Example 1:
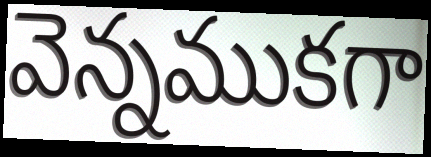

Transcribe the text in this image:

వెన్నముకగా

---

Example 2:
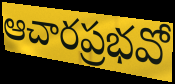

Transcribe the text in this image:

ఆచారప్రభవో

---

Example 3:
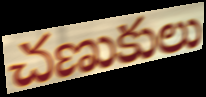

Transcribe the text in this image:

చణుకులు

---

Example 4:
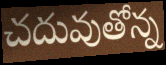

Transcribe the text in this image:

చదువుతోన్న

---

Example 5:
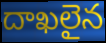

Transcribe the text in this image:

దాఖలైన